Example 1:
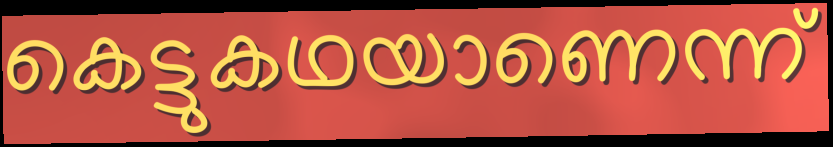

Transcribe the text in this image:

കെട്ടുകഥയാണെന്ന്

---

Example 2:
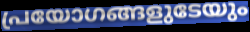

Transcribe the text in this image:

പ്രയോഗങ്ങളുടേയും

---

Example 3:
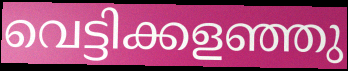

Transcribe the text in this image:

വെട്ടിക്കളഞ്ഞു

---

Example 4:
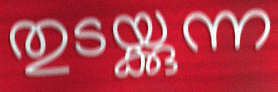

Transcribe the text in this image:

തുടയ്ക്കുന്ന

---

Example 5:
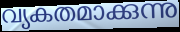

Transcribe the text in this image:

വ്യകതമാക്കുന്നു